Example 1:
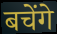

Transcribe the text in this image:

बचेंगे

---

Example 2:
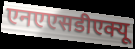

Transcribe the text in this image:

एनएएसडीएक्यू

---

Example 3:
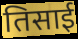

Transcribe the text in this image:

तिसाई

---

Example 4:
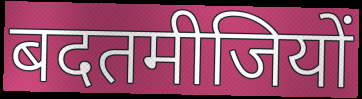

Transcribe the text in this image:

बदतमीजियों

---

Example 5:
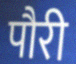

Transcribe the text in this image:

पौरी